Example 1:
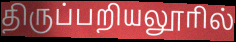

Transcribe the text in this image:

திருப்பறியலூரில்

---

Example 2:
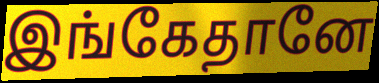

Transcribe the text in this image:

இங்கேதானே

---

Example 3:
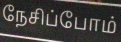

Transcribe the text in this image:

நேசிப்போம்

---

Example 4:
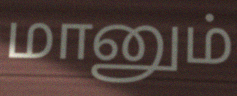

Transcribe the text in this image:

மானும்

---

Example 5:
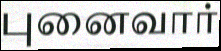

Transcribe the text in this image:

புனைவார்